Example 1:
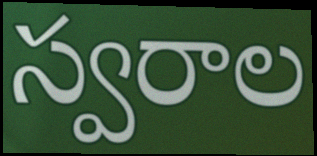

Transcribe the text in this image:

స్వరాల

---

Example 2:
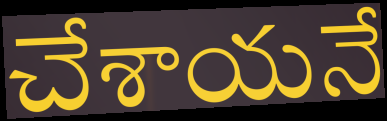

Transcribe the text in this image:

చేశాయనే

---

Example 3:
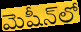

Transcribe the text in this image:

మెషీన్‌లో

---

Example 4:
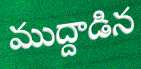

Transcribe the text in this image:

ముద్దాడిన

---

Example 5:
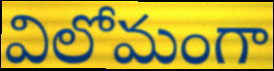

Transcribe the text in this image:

విలోమంగా